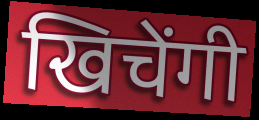
खिचेंगी